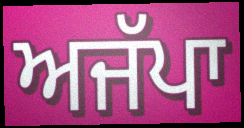
ਅਜੱਪਾ